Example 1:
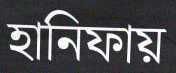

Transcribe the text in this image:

হানিফায়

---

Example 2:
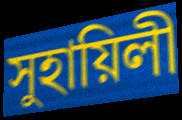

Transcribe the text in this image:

সুহায়িলী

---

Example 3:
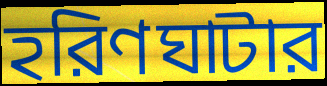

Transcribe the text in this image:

হরিণঘাটার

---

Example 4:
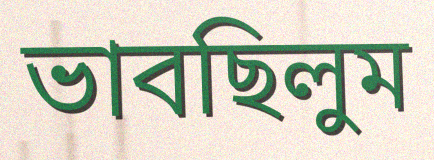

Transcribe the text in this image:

ভাবছিলুম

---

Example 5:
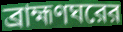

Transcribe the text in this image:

ব্রাহ্মণঘরের